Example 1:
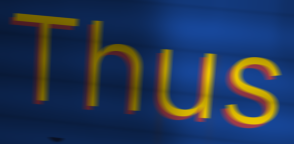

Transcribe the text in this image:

Thus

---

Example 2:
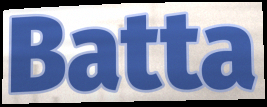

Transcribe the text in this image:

Batta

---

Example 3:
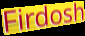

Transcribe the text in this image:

Firdosh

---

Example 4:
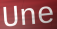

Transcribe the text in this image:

Une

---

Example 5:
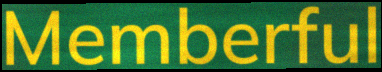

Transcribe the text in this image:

Memberful